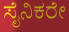
ಸೈನಿಕರೇ